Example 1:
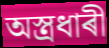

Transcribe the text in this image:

অস্ত্ৰধাৰী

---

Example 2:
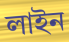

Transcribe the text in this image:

লাইন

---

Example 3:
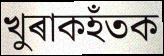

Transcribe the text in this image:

খুৰাকহঁতক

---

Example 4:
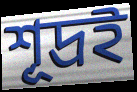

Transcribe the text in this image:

শূদ্ৰই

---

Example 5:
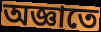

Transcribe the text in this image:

অজ্ঞাতে